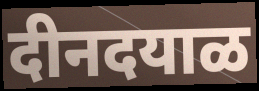
दीनदयाळ